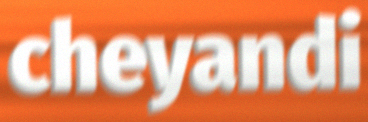
cheyandi